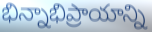
భిన్నాభిప్రాయాన్ని